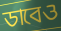
ডাবেও